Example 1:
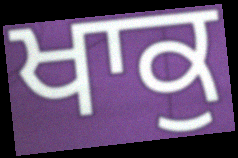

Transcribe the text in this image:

ਖਾਕੁ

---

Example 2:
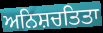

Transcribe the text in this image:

ਅਨਿਸ਼ਚਤਿਤਾ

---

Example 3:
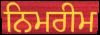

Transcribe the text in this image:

ਨਿਮਰੀਮ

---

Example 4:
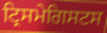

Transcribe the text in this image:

ਟ੍ਰਿਸਮੇਗਿਸਟਸ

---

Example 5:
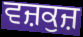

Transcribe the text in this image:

ਵਜ਼ਕੁਜ਼